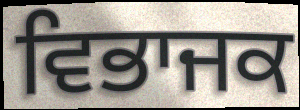
ਵਿਭਾਜਕ